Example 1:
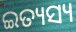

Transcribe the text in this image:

ଇତ୍ୟସ୍ୟ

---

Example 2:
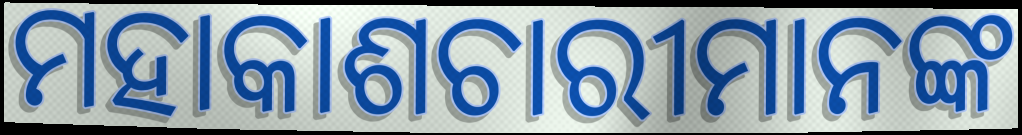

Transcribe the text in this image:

ମହାକାଶଚାରୀମାନଙ୍କ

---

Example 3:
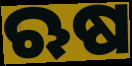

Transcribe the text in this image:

ଋଷ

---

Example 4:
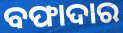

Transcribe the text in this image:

ବଫାଦାର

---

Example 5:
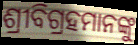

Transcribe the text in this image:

ଶ୍ରୀବିଗ୍ରହମାନଙ୍କୁ